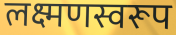
लक्ष्मणस्वरूप